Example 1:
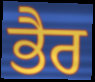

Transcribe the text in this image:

ਭੈਰ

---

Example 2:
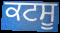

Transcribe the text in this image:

ਕਟਸੂ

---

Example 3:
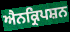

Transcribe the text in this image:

ਐਨਕ੍ਰਿਪਸ਼ਨ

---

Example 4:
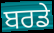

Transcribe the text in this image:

ਬਰਡੇ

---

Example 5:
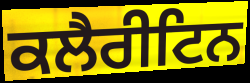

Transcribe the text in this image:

ਕਲੈਰੀਟਿਨ